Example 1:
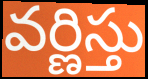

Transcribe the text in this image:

వర్ణిస్తు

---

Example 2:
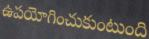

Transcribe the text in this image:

ఉపయోగించుకుంటుంది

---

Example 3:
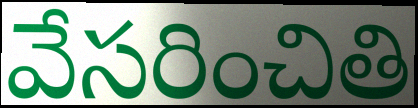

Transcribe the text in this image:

వేసరించితి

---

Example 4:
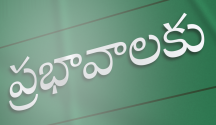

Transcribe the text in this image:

ప్రభావాలకు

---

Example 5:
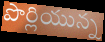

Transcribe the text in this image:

పొర్లియున్న